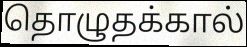
தொழுதக்கால்